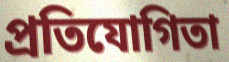
প্রতিযোগিতা